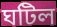
ঘটিল